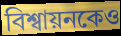
বিশ্বায়নকেও